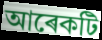
আৰেকটি